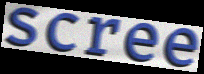
scree